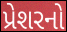
પ્રેશરનો